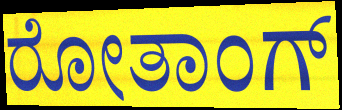
ರೋತಾಂಗ್